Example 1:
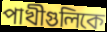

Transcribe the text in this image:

পাখীগুলিকে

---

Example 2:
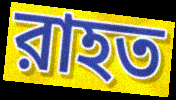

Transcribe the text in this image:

রাহত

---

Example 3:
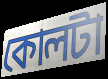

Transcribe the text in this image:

কোলটা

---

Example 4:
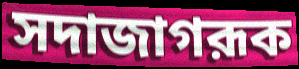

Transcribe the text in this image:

সদাজাগরূক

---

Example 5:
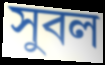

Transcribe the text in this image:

সুবল